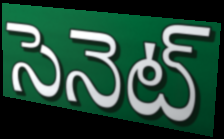
సెనెట్